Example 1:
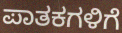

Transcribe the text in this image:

ಪಾತಕಗಳಿಗೆ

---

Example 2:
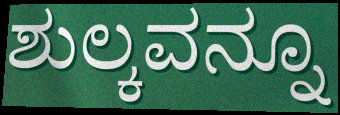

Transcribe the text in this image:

ಶುಲ್ಕವನ್ನೂ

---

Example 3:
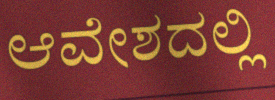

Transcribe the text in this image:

ಆವೇಶದಲ್ಲಿ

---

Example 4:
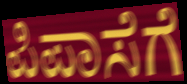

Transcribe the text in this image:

ಪಿಪಾಸೆಗೆ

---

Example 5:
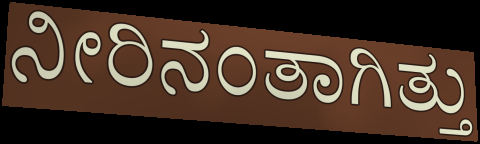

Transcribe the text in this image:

ನೀರಿನಂತಾಗಿತ್ತು